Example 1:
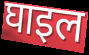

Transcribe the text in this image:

घाइल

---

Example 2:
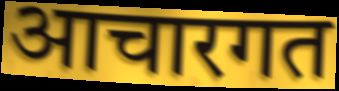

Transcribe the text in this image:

आचारगत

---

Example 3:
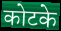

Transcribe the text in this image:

कोटके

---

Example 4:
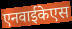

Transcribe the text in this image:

एनवाईकेएस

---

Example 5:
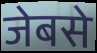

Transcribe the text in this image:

जेबसे